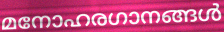
മനോഹരഗാനങ്ങൾ